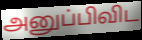
அனுப்பிவிட